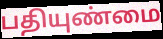
பதியுண்மை